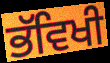
ਭੱਵਿਖੀ